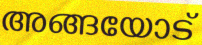
അങ്ങയോട്